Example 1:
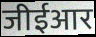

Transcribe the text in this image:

जीईआर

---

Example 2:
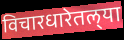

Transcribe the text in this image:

विचारधारेतल्या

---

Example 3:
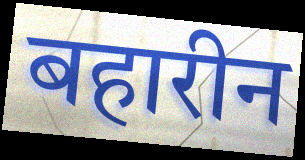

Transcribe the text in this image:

बहारीन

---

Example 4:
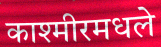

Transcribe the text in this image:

काश्‍मीरमधले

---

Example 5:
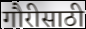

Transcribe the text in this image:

गौरीसाठी